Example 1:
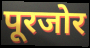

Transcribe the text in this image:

पूरजोर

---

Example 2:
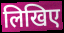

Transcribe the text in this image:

लिखिए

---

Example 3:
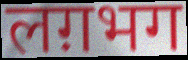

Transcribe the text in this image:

लग़भग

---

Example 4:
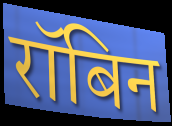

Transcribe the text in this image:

रॉबिन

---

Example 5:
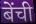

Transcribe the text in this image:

बेंची